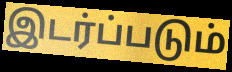
இடர்ப்படும்